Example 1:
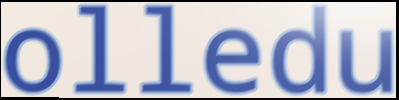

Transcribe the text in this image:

olledu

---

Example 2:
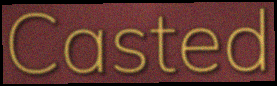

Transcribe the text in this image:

Casted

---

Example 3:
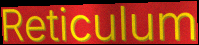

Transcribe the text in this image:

Reticulum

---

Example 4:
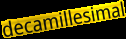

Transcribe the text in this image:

decamillesimal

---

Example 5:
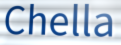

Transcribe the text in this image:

Chella